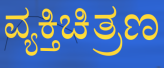
ವ್ಯಕ್ತಿಚಿತ್ರಣ